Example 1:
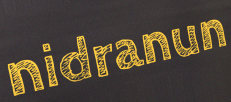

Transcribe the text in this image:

nidranun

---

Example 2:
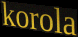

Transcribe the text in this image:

korola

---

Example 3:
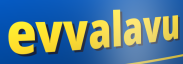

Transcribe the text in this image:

evvalavu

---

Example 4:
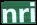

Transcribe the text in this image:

nri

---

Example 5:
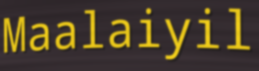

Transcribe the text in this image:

Maalaiyil